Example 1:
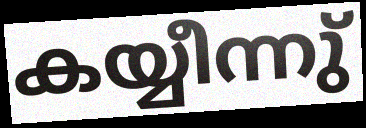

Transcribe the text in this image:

കയ്യീന്നു്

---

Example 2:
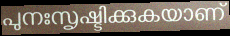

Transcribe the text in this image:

പുനഃസൃഷ്ടിക്കുകയാണ്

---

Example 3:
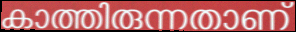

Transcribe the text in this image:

കാത്തിരുന്നതാണ്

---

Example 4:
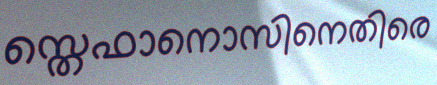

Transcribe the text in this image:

സ്തെഫാനൊസിനെതിരെ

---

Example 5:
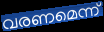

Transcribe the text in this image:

വരണമെന്ന്